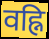
वह्नि